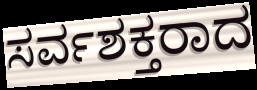
ಸರ್ವಶಕ್ತರಾದ